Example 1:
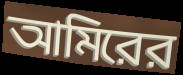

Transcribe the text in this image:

আমিরের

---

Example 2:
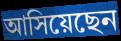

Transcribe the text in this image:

আসিয়েছেন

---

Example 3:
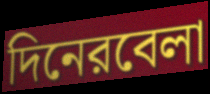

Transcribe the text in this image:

দিনেরবেলা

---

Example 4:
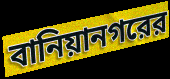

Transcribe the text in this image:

বানিয়ানগরের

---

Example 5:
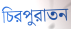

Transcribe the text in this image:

চিরপুরাতন